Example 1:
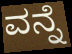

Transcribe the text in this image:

ವನ್ನೆ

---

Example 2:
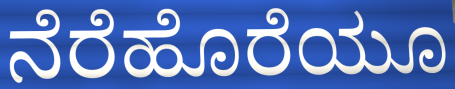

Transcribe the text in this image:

ನೆರೆಹೊರೆಯೂ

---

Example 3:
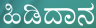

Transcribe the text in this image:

ಹಿಡಿದಾನ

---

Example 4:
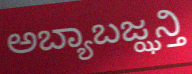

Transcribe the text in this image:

ಅಬ್ಯಾಬಜ್ಝನ್ತಿ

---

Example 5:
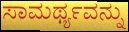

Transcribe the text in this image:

ಸಾಮರ್ಥ್ಯವನ್ನು